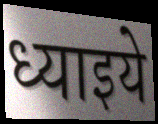
ध्याइये